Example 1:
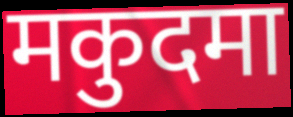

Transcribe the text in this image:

मकुदमा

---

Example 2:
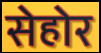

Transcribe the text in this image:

सेहोर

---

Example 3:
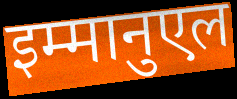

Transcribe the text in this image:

इम्मानुएल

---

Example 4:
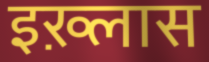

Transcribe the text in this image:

इख़्लास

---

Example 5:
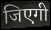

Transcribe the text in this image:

जिएगी